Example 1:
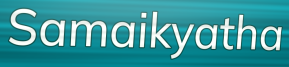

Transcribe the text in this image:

Samaikyatha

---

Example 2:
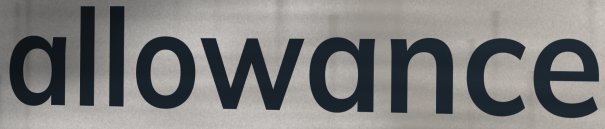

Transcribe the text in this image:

allowance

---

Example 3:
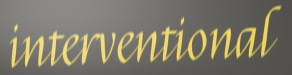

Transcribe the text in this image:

interventional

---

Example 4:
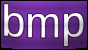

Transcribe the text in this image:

bmp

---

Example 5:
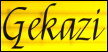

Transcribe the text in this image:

Gekazi